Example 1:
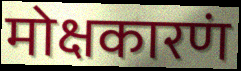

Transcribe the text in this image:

मोक्षकारणं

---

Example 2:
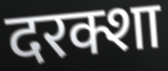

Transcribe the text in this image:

दरक्शा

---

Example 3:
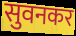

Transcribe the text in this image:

सुवनकर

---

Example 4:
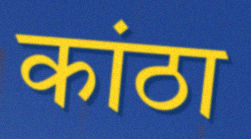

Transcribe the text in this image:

कांठा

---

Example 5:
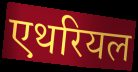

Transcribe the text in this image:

एथरियल